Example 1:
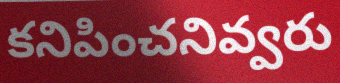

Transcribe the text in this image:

కనిపించనివ్వరు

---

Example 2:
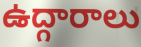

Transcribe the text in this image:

ఉద్గారాలు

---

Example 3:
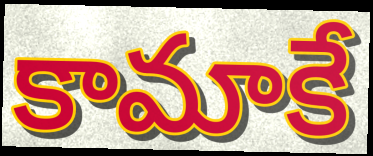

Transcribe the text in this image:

కామాకే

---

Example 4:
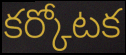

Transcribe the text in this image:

కర్కోటక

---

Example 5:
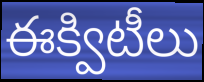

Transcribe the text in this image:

ఈక్విటీలు